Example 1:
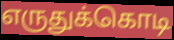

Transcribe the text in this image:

எருதுக்கொடி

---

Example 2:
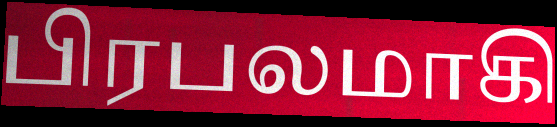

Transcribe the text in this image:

பிரபலமாகி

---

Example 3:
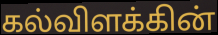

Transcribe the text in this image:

கல்விளக்கின்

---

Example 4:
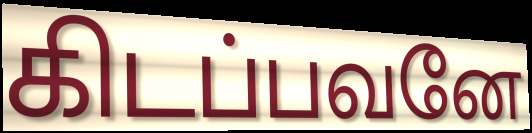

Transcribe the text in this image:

கிடப்பவனே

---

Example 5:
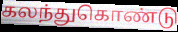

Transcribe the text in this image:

கலந்துகொண்டு